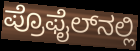
ಪ್ರೊಫೈಲ್‌ನಲ್ಲಿ